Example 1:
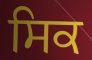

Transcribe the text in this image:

ਸਿਕ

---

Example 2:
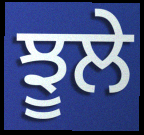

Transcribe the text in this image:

ਝੂਲੇ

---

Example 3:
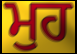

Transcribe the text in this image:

ਮੁਹ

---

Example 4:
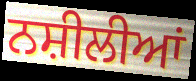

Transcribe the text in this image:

ਨਸ਼ੀਲੀਆਂ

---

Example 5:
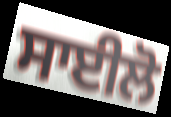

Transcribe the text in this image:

ਸਾਈਲੋ